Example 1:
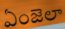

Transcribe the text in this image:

ఏంజెలా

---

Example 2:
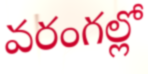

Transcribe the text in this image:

వరంగల్లో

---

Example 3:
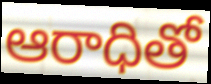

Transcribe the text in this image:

ఆరాధితో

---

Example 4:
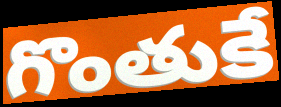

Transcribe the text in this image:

గొంతుకే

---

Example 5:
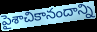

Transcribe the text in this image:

పైశాచికానందాన్ని